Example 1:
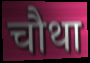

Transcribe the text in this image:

चौथा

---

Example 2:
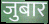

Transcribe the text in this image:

जुबार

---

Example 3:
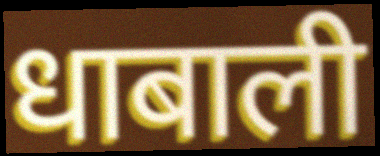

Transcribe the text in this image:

धाबाली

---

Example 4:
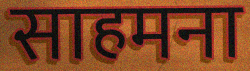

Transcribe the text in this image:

साहमना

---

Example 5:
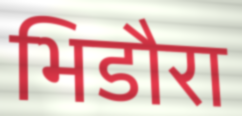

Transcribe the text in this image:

भिडौरा